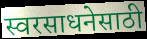
स्वरसाधनेसाठी